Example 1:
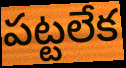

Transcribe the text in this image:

పట్టలేక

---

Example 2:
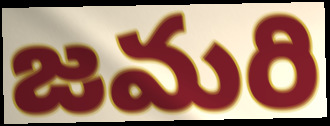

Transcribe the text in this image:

జమరి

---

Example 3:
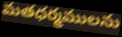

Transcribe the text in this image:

మతధర్మములను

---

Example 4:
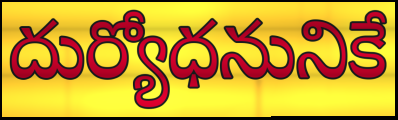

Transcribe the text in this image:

దుర్యోధనునికే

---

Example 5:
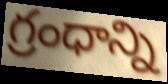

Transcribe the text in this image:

గ్రంధాన్ని